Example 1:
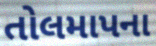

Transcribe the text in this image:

તોલમાપના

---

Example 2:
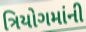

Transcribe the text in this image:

ત્રિયોગમાંની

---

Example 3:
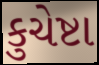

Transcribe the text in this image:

કુચેષ્ટા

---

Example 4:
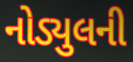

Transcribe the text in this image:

નોડ્યુલની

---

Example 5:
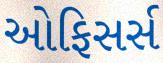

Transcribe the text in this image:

ઓફિસર્સ